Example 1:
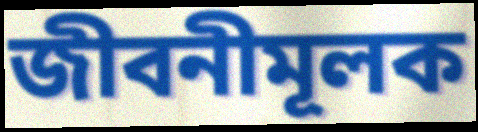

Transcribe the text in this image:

জীবনীমূলক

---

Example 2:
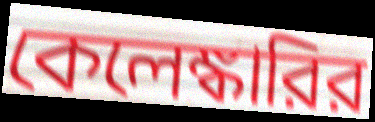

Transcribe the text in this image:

কেলেঙ্কারির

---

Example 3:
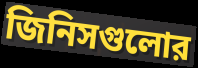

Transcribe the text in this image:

জিনিসগুলোর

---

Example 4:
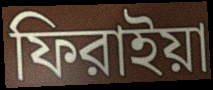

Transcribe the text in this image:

ফিরাইয়া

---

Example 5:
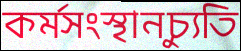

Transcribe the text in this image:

কর্মসংস্থানচ্যুতি